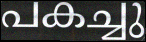
പകച്ചു